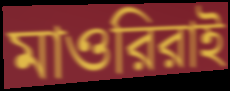
মাওরিরাই